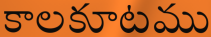
కాలకూటము